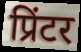
प्रिंटर